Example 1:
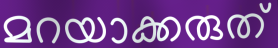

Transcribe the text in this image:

മറയാക്കരുത്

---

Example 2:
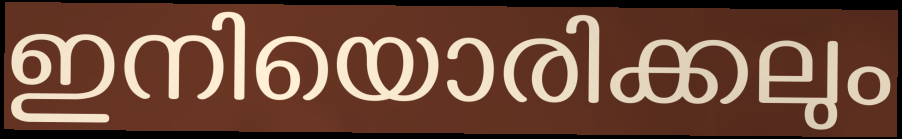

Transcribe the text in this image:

ഇനിയൊരിക്കലും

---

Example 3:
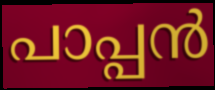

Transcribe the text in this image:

പാപ്പൻ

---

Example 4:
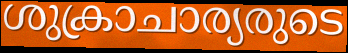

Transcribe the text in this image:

ശുക്രാചാര്യരുടെ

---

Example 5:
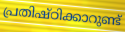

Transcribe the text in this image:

പ്രതിഷ്ഠിക്കാറുണ്ട്